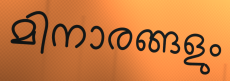
മിനാരങ്ങളും